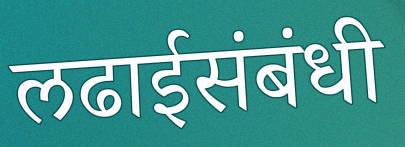
लढाईसंबंधी